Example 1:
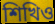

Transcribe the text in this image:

শিখিও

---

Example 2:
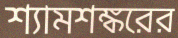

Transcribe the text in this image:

শ্যামশঙ্করের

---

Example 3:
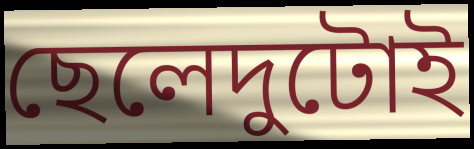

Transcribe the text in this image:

ছেলেদুটোই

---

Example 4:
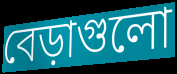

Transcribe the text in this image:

বেড়াগুলো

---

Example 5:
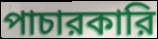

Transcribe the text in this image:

পাচারকারি